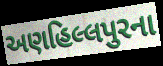
અણહિલ્લપુરના